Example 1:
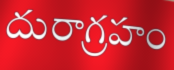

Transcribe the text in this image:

దురాగ్రహం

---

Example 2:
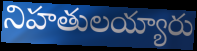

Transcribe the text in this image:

నిహతులయ్యారు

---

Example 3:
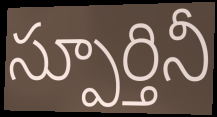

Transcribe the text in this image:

స్పూర్తినీ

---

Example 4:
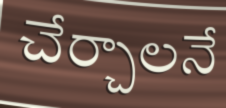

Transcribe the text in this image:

చేర్చాలనే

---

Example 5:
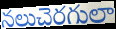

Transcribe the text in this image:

నలుచెరగులా